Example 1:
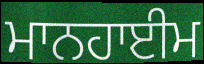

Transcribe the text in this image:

ਮਾਨਹਾਈਮ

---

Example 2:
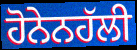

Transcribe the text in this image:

ਹੋਨੇਨਹੱਲੀ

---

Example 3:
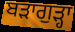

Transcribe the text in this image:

ਬੜਾਗੁੜ੍ਹਾ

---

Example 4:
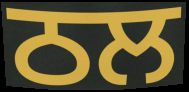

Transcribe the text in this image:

ਠਲ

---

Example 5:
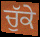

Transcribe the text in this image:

ਚੁੱਕੇ